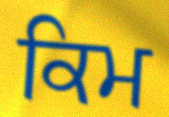
ਕਿਮ